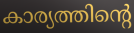
കാര്യത്തിന്റെ